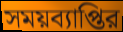
সময়ব্যাপ্তির